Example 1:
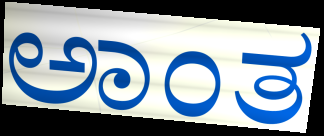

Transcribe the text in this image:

ಅಾಂತ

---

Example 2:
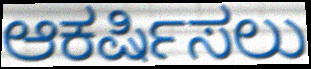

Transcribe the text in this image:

ಆಕರ್ಷಿಸಲು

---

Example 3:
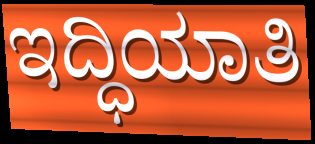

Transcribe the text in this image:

ಇದ್ಧಿಯಾತಿ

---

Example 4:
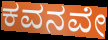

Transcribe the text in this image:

ಕವನವೇ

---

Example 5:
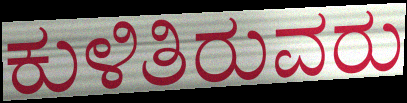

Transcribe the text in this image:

ಕುಳಿತಿರುವರು